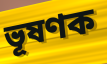
ভূষণক